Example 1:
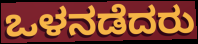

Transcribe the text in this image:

ಒಳನಡೆದರು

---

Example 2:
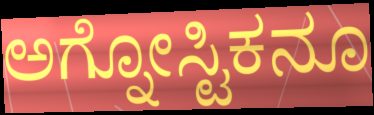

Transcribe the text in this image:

ಅಗ್ನೋಸ್ಟಿಕನೂ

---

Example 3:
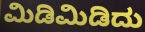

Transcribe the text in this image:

ಮಿಡಿಮಿಡಿದು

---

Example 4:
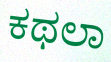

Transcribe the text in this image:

ಕಥಲಾ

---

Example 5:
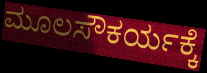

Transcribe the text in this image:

ಮೂಲಸೌಕರ್ಯಕ್ಕೆ